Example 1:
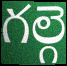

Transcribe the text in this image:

గల్గె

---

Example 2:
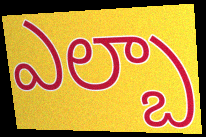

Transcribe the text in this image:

ఎల్బా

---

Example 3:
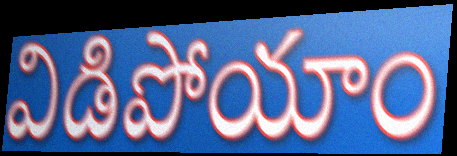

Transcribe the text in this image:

విడిపోయాం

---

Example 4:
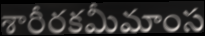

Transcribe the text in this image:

శారీరకమీమాంస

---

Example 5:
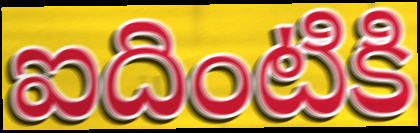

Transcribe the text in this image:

ఐదింటికి